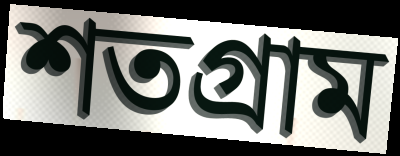
শতগ্রাম